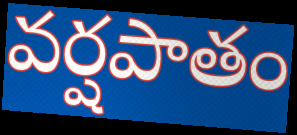
వర్షపాతం